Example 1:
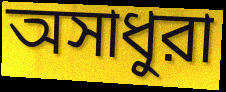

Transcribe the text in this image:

অসাধুরা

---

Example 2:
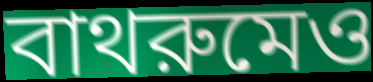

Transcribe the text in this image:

বাথরুমেও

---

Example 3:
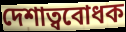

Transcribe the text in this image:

দেশাত্ববোধক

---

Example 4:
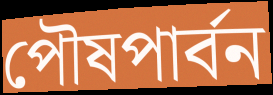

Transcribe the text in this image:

পৌষপার্বন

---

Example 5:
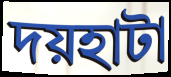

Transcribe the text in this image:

দয়হাটা